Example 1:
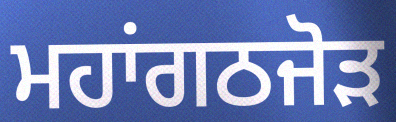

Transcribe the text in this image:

ਮਹਾਂਗਠਜੋਡ਼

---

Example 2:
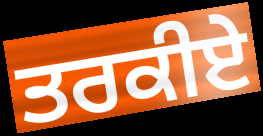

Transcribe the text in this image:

ਤਰਕੀਏ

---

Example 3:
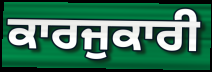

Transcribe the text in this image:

ਕਾਰਜੁਕਾਰੀ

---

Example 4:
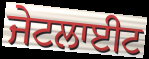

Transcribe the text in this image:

ਜੇਟਲਾਈਟ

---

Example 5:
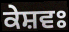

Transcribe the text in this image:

ਕੇਸ਼ਵਃ